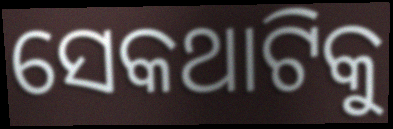
ସେକଥାଟିକୁ